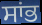
ਸਾਂਭ